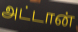
அட்டான்